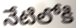
నేటిలోకి